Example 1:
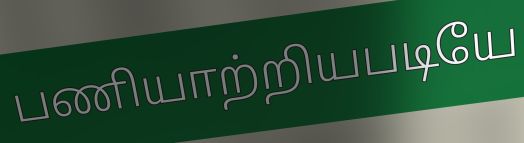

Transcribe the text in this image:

பணியாற்றியபடியே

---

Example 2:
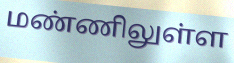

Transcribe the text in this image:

மண்ணிலுள்ள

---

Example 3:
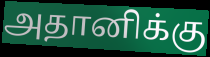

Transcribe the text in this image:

அதானிக்கு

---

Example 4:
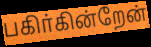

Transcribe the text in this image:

பகிர்கின்றேன்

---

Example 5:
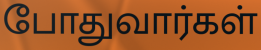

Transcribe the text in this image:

போதுவார்கள்